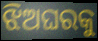
ଝିଅଘରକୁ